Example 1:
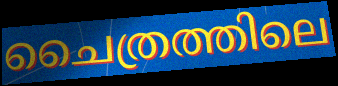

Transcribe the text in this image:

ചൈത്രത്തിലെ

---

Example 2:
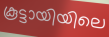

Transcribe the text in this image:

കൂട്ടായിയിലെ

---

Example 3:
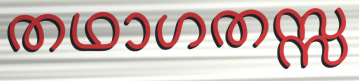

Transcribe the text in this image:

തഥാഗതസ്സ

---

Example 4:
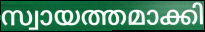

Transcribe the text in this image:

സ്വായത്തമാക്കി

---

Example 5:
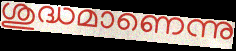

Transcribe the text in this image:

ശുദ്ധമാണെന്നു